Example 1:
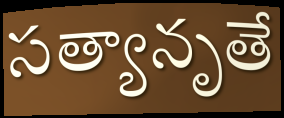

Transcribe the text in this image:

సత్యానృతే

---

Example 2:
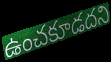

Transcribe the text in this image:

ఉంచకూడదని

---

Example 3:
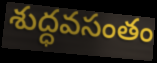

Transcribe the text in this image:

శుద్ధవసంతం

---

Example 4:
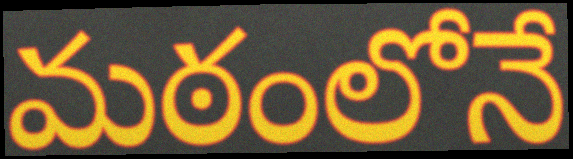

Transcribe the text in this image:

మఠంలోనే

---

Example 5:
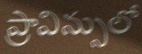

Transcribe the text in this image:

ప్రావిన్సులో